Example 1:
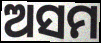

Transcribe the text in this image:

ଅସମ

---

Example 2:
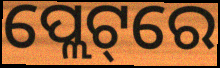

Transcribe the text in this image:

ପ୍ଲେଟ୍‌ରେ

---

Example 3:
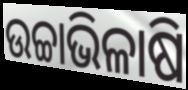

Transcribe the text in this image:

ଉଚ୍ଚାଭିଳାଷି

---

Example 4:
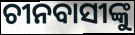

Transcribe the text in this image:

ଚୀନବାସୀଙ୍କୁ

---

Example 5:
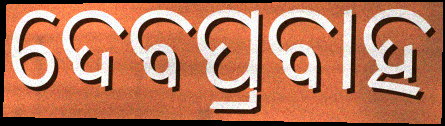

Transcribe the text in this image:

ଦେବପ୍ରବାହ